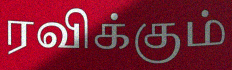
ரவிக்கும்